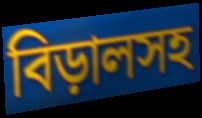
বিড়ালসহ